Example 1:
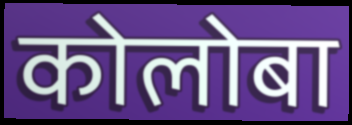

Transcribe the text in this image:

कोलोबा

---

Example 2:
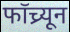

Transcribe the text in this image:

फॉच्र्यून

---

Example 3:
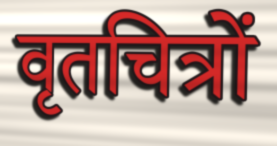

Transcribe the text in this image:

वृतचित्रों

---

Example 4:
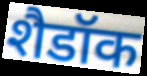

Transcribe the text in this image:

शैडॉक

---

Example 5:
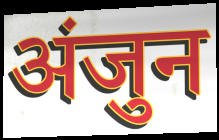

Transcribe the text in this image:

अंजुन